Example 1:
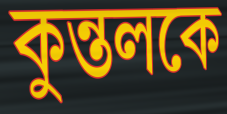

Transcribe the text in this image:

কুন্তলকে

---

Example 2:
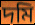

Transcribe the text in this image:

দমি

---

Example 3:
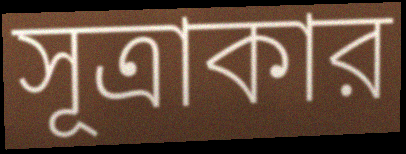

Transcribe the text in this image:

সূত্রাকার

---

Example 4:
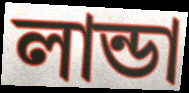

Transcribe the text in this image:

লান্ডা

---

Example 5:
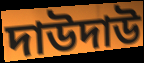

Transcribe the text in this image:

দাউদাউ